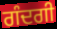
ਗੰਦਗੀ